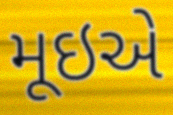
મૂઇએ